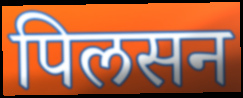
पिलसन